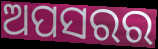
ଅପସରର